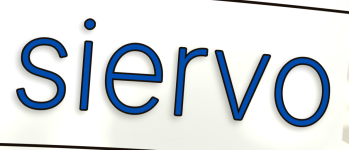
siervo